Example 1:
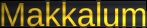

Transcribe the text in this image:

Makkalum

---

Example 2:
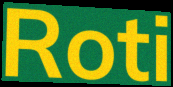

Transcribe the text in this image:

Roti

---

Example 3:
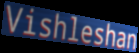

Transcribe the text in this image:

Vishleshan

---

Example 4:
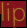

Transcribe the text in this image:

lip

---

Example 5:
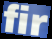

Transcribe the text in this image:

fir